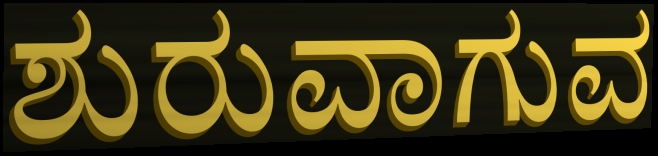
ಶುರುವಾಗುವ